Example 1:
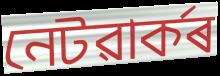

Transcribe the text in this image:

নেটৱাৰ্কৰ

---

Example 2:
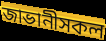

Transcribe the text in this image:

জাভানীসকল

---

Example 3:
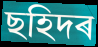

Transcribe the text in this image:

ছহিদৰ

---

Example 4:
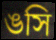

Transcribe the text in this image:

ঙসি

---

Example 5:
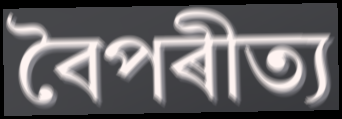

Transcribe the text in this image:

বৈপৰীত্য